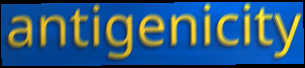
antigenicity